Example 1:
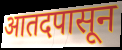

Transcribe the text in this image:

आतदपासून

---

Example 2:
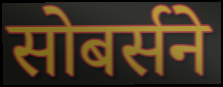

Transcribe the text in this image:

सोबर्सने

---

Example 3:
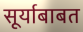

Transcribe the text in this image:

सूर्याबाबत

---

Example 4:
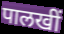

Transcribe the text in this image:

पालखीं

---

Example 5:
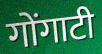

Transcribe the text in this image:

गोंगाटी